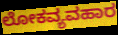
ಲೋಕವ್ಯವಹಾರ